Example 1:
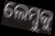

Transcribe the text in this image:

ଲେମ୍ବୁକୁ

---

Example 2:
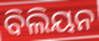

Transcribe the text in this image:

ବିଲିୟନ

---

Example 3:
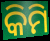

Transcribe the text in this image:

କିମି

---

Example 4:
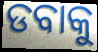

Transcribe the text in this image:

ଡବାକୁ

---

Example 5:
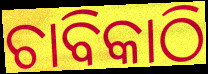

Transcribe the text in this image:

ଚାବିକାଠି